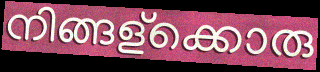
നിങ്ങള്ക്കൊരു